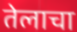
तेलाचा